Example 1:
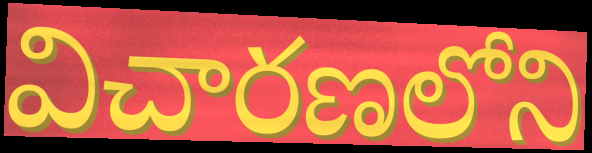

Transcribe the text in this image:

విచారణలోని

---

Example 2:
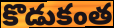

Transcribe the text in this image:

కొడుకంత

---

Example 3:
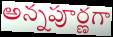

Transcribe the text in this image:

అన్నపూర్ణగా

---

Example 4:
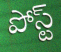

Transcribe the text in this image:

పోస్ట్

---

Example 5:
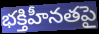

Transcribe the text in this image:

భక్తిహీనతపై